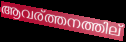
ആവര്ത്തനത്തില്